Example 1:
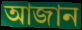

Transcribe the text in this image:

আজান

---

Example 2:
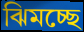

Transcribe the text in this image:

ঝিমচ্ছে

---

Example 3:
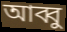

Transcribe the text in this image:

আব্বু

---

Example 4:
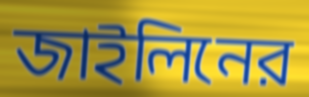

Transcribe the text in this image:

জাইলিনের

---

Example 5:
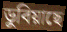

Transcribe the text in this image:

ডুবিয়াছে